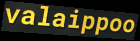
valaippoo